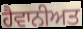
ਹੈਵਾਨੀਅਤ